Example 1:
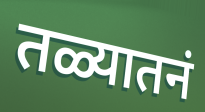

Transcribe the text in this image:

तळ्यातनं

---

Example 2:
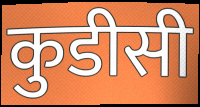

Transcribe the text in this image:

कुडीसी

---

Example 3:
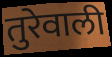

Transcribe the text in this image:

तुरेवाली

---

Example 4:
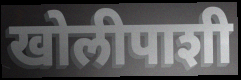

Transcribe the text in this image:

खोलीपाशी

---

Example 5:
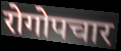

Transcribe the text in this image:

रोगोपचार